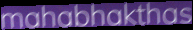
mahabhakthas